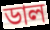
ডাল